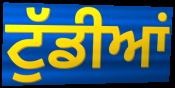
ਟੁੱਡੀਆਂ